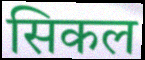
सिकल